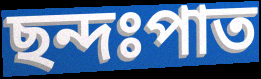
ছন্দঃপাত